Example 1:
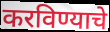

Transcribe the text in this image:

करविण्याचे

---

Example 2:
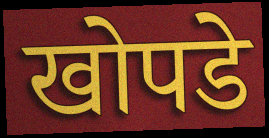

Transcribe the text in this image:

खोपडे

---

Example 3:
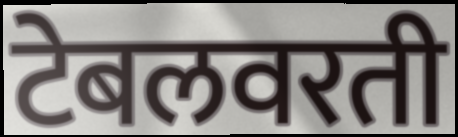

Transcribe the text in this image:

टेबलवरती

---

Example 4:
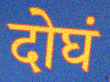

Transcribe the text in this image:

दोघं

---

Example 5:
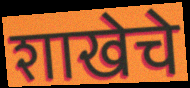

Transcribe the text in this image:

शाखेचे